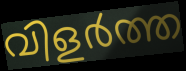
വിളർത്ത